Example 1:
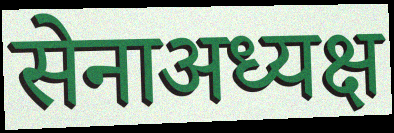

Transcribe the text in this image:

सेनाअध्यक्ष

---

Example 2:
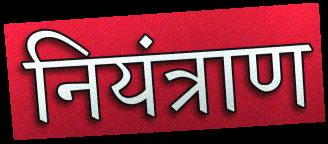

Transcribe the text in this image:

नियंत्राण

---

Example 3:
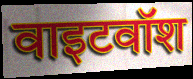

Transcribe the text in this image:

वाइटवॉश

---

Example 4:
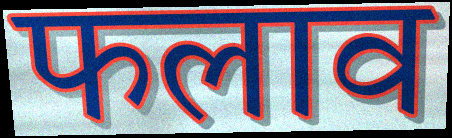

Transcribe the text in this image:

फलाव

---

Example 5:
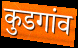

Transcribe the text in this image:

कुडगांव